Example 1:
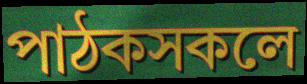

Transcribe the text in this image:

পাঠকসকলে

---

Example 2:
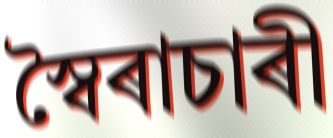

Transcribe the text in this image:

স্বৈৰাচাৰী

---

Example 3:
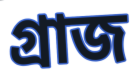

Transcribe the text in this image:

গ্ৰাজ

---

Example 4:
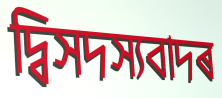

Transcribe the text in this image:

দ্বিসদস্যবাদৰ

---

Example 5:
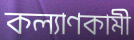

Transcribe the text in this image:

কল্যাণকামী